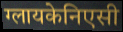
ग्लायकेनिएसी